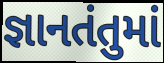
જ્ઞાનતંતુમાં